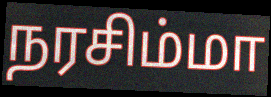
நரசிம்மா